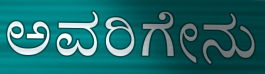
ಅವರಿಗೇನು